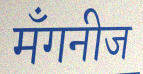
मँगनीज